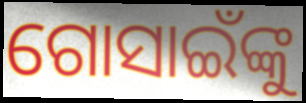
ଗୋସାଇଁଙ୍କୁ